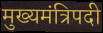
मुख्यमंत्रिपदी